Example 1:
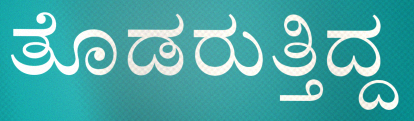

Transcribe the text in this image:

ತೊಡರುತ್ತಿದ್ದ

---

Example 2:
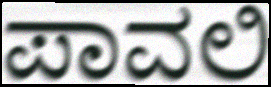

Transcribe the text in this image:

ಪಾವಲಿ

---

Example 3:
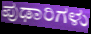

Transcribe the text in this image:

ಪುಢಾರಿಗಳು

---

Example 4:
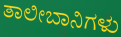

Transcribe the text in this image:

ತಾಲೀಬಾನಿಗಳು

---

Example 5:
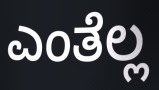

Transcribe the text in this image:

ಎಂತೆಲ್ಲ